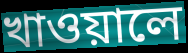
খাওয়ালে